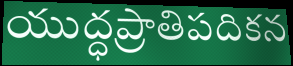
యుద్ధప్రాతిపదికన